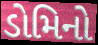
ડોમિનો